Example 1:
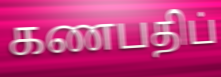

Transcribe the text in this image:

கணபதிப்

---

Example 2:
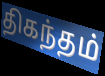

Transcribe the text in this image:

திகந்தம்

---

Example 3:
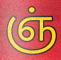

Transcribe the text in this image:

ஞ்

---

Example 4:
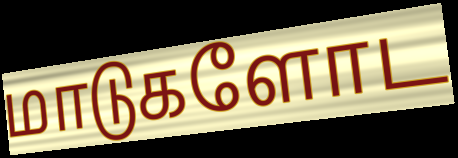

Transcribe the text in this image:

மாடுகளோட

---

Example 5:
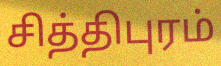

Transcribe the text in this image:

சித்திபுரம்